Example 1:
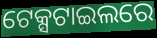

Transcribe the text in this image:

ଟେକ୍ସଟାଇଲରେ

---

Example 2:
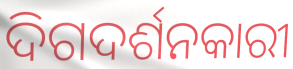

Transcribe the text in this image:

ଦିଗଦର୍ଶନକାରୀ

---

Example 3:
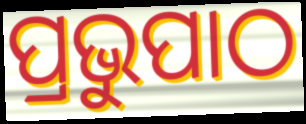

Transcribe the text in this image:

ପ୍ରଭୁପାଠ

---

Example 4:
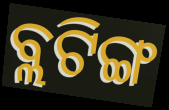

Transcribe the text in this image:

ବ୍ଲଟିଙ୍ଗ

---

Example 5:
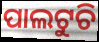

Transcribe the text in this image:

ପାଲଟୁଚି